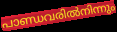
പാണ്ഡവരിൽനിന്നും